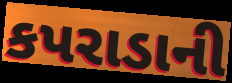
કપરાડાની